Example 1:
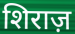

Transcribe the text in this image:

शिराज़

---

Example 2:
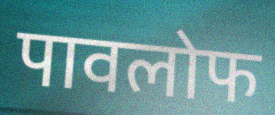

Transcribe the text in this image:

पावलोफ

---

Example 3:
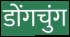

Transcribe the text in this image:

डोंगचुंग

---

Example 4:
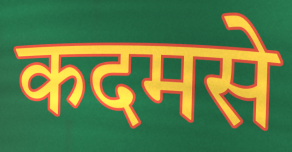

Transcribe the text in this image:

कदमसे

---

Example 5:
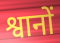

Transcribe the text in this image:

श्वानों